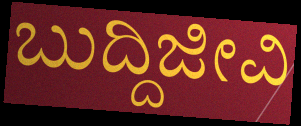
ಬುದ್ದಿಜೀವಿ